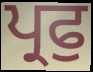
ਪ੍ਰਫੁ